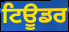
ਟਿਊਡਰ